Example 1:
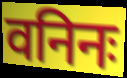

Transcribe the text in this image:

वनिनः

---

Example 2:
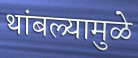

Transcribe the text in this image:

थांबल्यामुळे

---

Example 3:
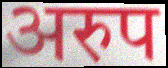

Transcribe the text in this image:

अरुप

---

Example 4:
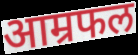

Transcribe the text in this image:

आम्रफल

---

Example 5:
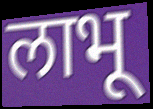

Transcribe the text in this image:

लाभू